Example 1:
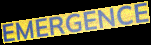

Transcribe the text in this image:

EMERGENCE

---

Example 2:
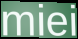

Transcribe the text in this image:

miei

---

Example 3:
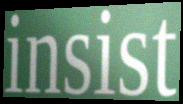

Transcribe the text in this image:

insist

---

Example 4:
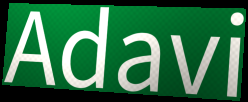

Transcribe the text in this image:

Adavi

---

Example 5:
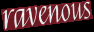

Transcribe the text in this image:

ravenous